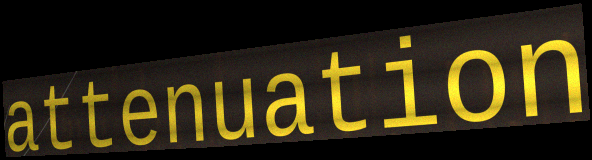
attenuation